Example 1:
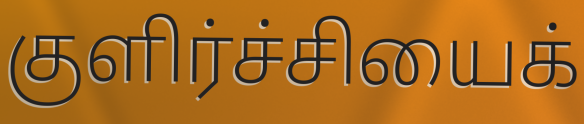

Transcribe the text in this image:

குளிர்ச்சியைக்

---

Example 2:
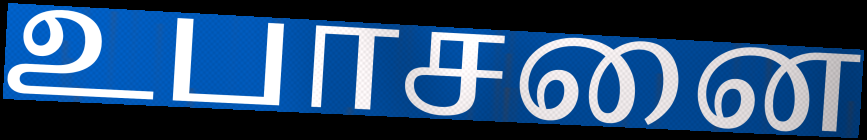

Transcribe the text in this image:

உபாசனை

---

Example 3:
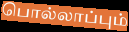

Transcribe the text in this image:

பொல்லாப்பும்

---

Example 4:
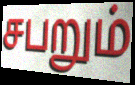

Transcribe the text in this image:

சபறும்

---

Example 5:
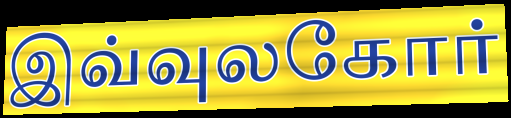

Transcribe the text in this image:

இவ்வுலகோர்